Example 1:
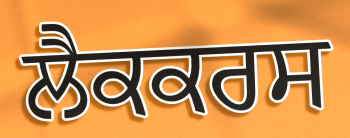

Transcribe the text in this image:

ਲੈਕਕਰਸ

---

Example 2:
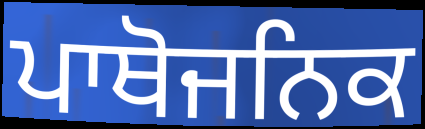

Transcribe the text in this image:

ਪਾਥੋਜਨਿਕ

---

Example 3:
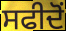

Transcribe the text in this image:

ਸਫੀਦੋਂ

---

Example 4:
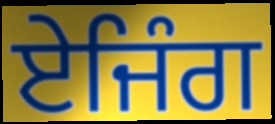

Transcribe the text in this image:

ਏਜਿੰਗ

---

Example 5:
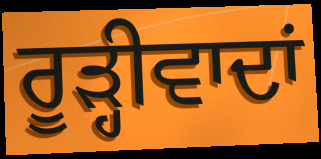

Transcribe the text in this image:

ਰੂੜ੍ਹੀਵਾਦਾਂ